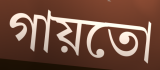
গায়তো